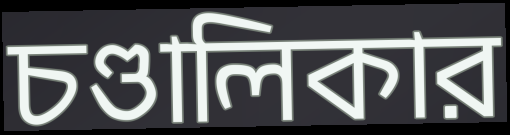
চণ্ডালিকার